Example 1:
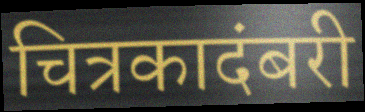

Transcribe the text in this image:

चित्रकादंबरी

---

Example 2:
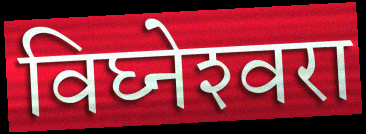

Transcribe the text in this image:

विघ्नेश्वरा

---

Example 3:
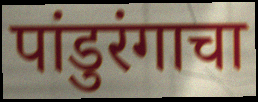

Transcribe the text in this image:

पांडुरंगाचा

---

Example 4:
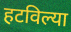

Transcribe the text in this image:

हटविल्या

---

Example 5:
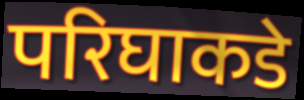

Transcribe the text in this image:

परिघाकडे